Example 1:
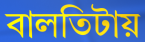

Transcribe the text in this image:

বালতিটায়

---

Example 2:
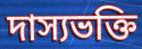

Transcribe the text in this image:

দাস্যভক্তি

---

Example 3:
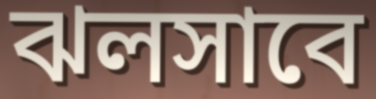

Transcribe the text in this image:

ঝলসাবে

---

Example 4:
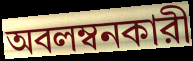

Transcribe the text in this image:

অবলম্বনকারী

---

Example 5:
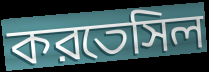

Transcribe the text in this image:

করতেসিল